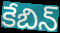
కేబిన్